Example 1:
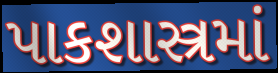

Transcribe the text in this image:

પાકશાસ્ત્રમાં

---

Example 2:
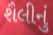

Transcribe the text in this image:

શૈલીનું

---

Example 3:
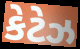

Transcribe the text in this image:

કેટેઝ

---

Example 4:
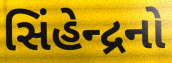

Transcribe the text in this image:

સિંહેન્દ્રનો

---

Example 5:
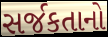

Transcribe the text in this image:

સર્જકતાનો